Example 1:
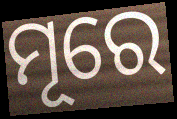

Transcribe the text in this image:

ମୂରେ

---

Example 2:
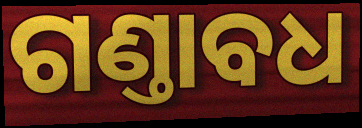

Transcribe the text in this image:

ଗଣ୍ତାବଧ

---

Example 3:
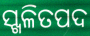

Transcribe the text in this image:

ସ୍ଖଳିତପଦ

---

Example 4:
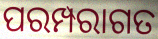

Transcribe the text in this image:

ପରମ୍ପରାଗତ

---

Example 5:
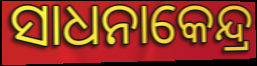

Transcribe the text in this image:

ସାଧନାକେନ୍ଦ୍ର